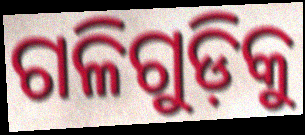
ଗଳିଗୁଡ଼ିକୁ